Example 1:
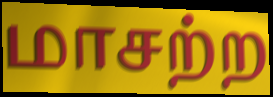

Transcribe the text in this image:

மாசற்ற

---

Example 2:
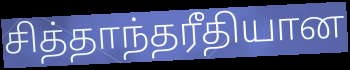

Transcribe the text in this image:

சித்தாந்தரீதியான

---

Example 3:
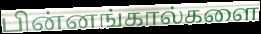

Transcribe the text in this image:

பின்னங்கால்களை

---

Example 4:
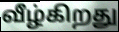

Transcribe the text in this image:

வீழ்கிறது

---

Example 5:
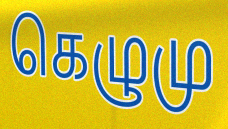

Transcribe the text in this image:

கெழுமு